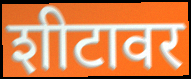
शीटावर